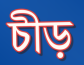
চীড়